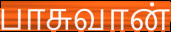
பாசுவான்